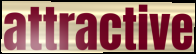
attractive